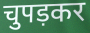
चुपड़कर